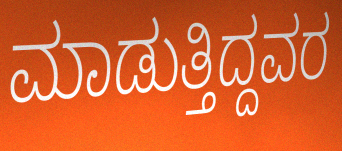
ಮಾಡುತ್ತಿದ್ದವರ